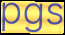
pgs